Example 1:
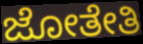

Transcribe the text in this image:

ಜೋತೇತಿ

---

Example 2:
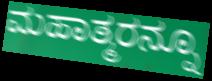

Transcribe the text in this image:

ಮಹಾತ್ಮರನ್ನೂ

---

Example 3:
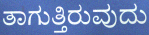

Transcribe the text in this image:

ತಾಗುತ್ತಿರುವುದು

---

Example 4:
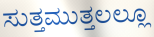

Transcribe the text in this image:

ಸುತ್ತಮುತ್ತಲಲ್ಲೂ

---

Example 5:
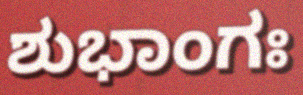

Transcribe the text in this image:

ಶುಭಾಂಗಃ